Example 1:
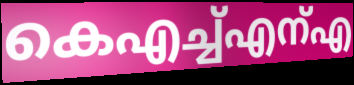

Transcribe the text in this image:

കെഎച്ച്എന്എ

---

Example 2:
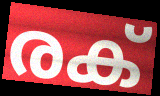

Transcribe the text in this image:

രക്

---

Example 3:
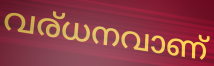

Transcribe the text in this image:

വര്ധനവാണ്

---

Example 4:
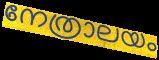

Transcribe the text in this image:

നേത്രാലയം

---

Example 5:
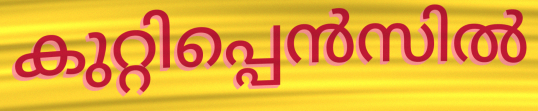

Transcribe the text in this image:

കുറ്റിപ്പെൻസിൽ